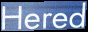
Hered